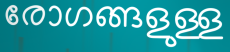
രോഗങ്ങളുള്ള